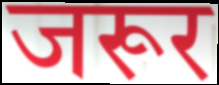
जरूर